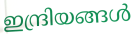
ഇന്ദ്രിയങ്ങൾ